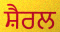
ਸ਼ੈਰਲ